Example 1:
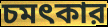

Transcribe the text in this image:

চমৎকার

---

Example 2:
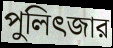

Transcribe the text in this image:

পুলিৎজার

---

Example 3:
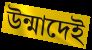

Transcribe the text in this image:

উন্মাদেই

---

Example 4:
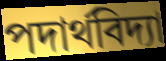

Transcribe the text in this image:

পদার্থবিদ্যা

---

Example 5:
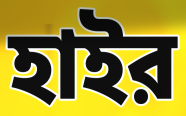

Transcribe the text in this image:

হাইর